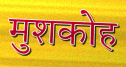
मुशकोह